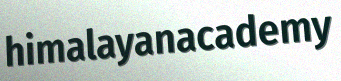
himalayanacademy